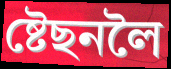
ষ্টেছনলৈ